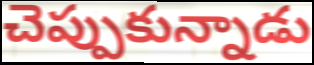
చెప్పుకున్నాడు